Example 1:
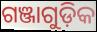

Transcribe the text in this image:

ଗଞ୍ଜାଗୁଡ଼ିକ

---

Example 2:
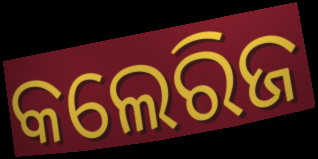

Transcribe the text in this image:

କଲେରିଜ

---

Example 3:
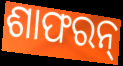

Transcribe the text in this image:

ଶାଫରନ୍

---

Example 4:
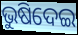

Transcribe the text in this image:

ଭୁଷିଦେଇ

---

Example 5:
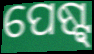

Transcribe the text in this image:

ପେଷ୍ଟ୍